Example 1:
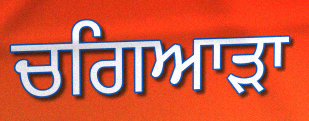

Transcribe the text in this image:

ਚਗਿਆੜਾ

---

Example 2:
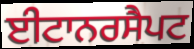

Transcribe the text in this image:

ਈਟਾਨਰਸੈਪਟ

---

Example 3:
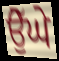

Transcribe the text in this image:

ਉੇੱਘੇ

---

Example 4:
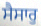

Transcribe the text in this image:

ਸੈਸਾਰੁ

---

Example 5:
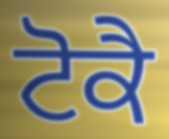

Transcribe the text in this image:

ਟੋਕੈ